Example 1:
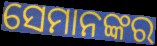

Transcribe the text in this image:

ସେମାନଙ୍କର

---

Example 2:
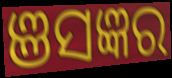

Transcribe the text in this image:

ଞସଜ୍ଞର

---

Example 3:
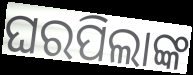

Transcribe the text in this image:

ଘରପିଲାଙ୍କ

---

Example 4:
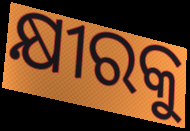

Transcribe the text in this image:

କ୍ଷୀରକୁ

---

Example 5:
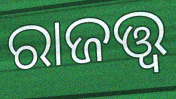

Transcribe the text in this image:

ରାଜତ୍ତ୍ୱ